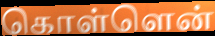
கொள்ளென்